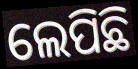
ଲେପିଛି